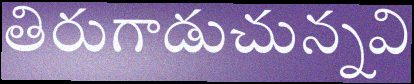
తిరుగాడుచున్నవి